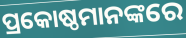
ପ୍ରକୋଷ୍ଠମାନଙ୍କରେ